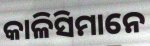
କାଳିସିମାନେ